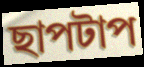
ছাপটাপ